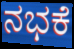
ನಭಕೆ